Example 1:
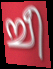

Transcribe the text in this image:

ച്ചീ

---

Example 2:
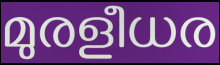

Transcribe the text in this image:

മുരളീധര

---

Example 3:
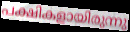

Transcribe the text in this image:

പക്ഷികളായിരുന്നു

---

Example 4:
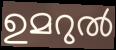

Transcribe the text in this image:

ഉമറുൽ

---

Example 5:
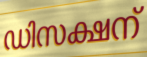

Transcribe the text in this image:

ഡിസക്ഷന്